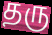
தரு